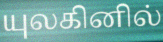
யுலகினில்